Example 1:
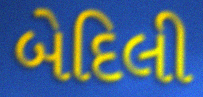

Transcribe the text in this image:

બેદિલી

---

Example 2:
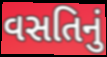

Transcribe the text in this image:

વસતિનું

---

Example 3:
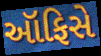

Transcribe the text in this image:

ઑફિસે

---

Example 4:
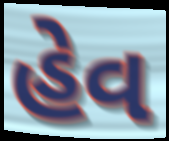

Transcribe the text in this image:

હેવ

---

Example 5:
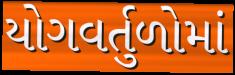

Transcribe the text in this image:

યોગવર્તુળોમાં